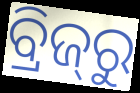
ବ୍ରିଜ୍‌ରୁ